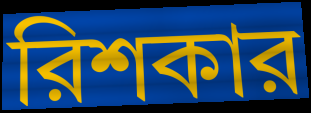
রিশকার